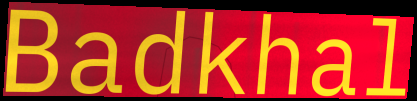
Badkhal